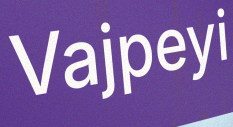
Vajpeyi